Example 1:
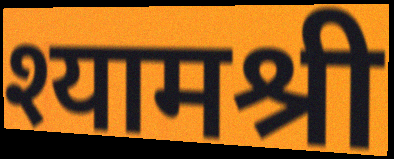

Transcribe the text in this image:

श्यामश्री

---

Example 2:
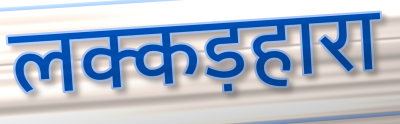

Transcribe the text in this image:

लक्कड़हारा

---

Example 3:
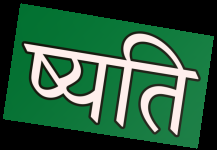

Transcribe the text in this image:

ष्यति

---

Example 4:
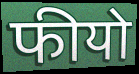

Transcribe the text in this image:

फीयो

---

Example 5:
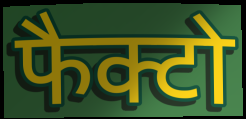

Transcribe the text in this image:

फैक्टो